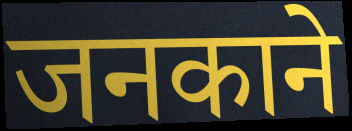
जनकाने